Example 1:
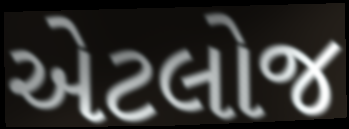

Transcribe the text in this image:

એટલોજ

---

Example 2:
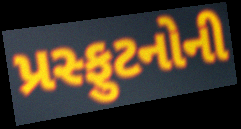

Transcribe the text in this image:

પ્રસ્ફુટનોની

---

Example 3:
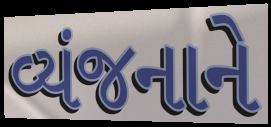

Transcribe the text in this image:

વ્યંજનાને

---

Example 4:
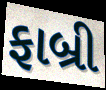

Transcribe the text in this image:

ફાબ્રી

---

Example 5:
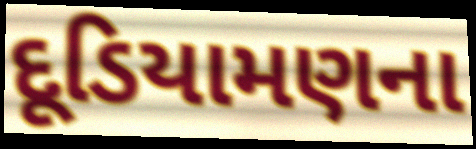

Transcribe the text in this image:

દૂડિયામણના